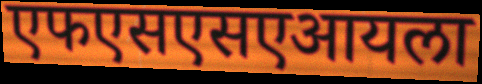
एफएसएसएआयला